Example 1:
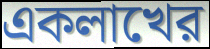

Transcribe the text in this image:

একলাখের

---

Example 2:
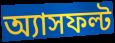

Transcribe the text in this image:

অ্যাসফল্ট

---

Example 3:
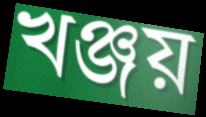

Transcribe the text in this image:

খঞ্জয়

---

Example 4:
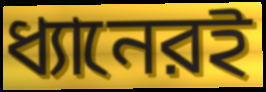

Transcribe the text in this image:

ধ্যানেরই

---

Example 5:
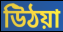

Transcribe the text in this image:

উিঠয়া